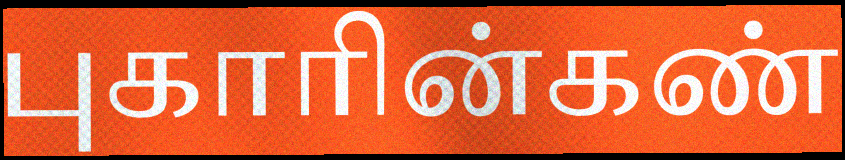
புகாரின்கண்